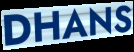
DHANS